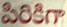
పిరికిగా